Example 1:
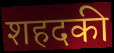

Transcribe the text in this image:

शहदकी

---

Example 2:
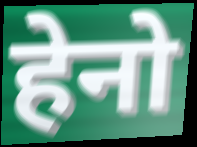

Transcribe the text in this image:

हेनो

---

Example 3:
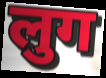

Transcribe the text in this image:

लुग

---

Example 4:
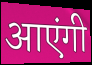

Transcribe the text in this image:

आएंगी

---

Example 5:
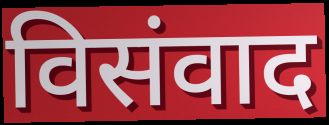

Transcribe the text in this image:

विसंवाद